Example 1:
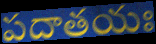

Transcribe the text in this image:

పదాతయః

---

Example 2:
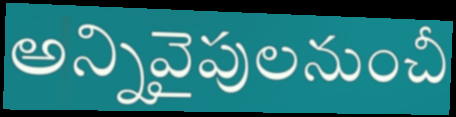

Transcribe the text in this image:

అన్నివైపులనుంచీ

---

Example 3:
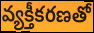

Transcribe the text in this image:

వ్యక్తీకరణతో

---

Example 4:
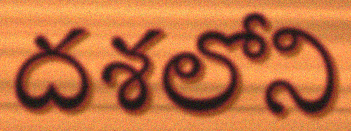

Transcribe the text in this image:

దశలోని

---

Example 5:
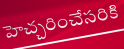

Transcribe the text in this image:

హెచ్చరించేసరికి